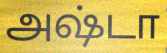
அஷ்டா